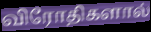
விரோதிகளால்